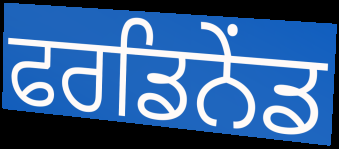
ਫਰਡਿਨੇਂਡ